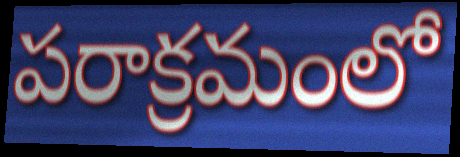
పరాక్రమంలో